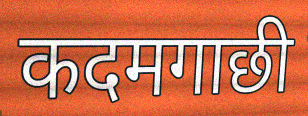
कदमगाछी